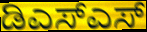
ಡಿಎಸ್ಎಸ್